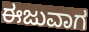
ಈಜುವಾಗ